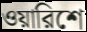
ওয়ারিশে